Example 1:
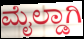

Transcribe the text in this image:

ಮೈಲ್ಡಾಗಿ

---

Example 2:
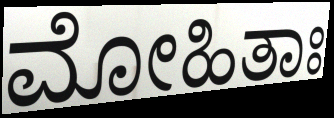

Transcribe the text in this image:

ಮೋಹಿತಾಃ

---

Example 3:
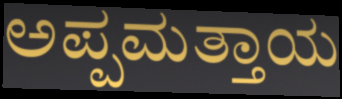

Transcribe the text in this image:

ಅಪ್ಪಮತ್ತಾಯ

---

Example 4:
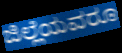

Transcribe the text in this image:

ಜಿಲ್ಲೆಯವರೂ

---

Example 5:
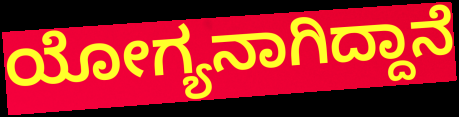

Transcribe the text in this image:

ಯೋಗ್ಯನಾಗಿದ್ದಾನೆ